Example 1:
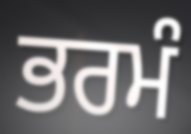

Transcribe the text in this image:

ਭਰਮੰ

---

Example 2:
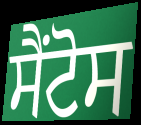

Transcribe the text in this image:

ਸੈਂਟੋਸ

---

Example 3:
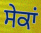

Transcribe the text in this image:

ਸੇਕਾਂ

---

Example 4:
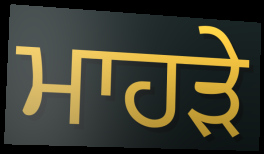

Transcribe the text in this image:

ਮਾਹੜੇ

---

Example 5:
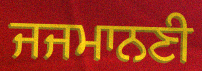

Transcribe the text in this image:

ਜਜਮਾਨਣੀ